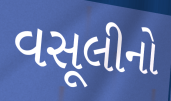
વસૂલીનો